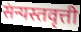
संन्यस्तवृत्ती